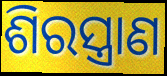
ଶିରସ୍ତ୍ରାଣ